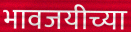
भावजयीच्या